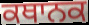
ਕਥਾਨਕ